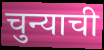
चुन्याची